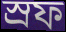
স্রফ